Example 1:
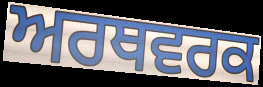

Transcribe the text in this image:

ਅਰਥਵਰਕ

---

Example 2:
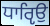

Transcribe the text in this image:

ਧਾਰੵਿਉ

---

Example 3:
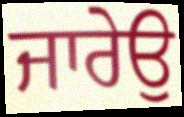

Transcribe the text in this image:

ਜਾਰੇਉ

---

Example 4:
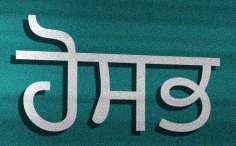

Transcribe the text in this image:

ਹੋਸਭ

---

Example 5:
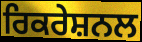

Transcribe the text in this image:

ਰਿਕਰੇਸ਼ਨਲ